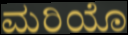
ಮರಿಯೊ